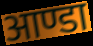
आण्डा